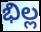
భిల్ల